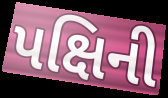
પક્ષિની